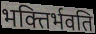
भक्तिर्भवति